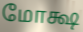
மோக்ஷ